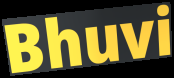
Bhuvi